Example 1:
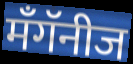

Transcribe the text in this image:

मँगॅनीज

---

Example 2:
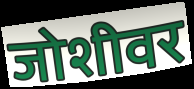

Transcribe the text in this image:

जोशीवर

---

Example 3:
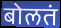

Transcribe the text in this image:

बोलतं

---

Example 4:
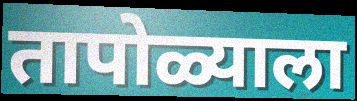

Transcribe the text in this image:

तापोळ्याला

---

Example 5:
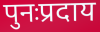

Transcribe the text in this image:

पुनःप्रदाय